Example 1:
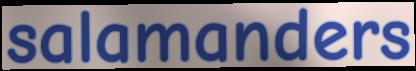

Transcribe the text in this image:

salamanders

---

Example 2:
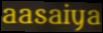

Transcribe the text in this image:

aasaiya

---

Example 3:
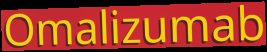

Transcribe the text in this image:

Omalizumab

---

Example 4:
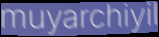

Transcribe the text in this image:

muyarchiyil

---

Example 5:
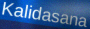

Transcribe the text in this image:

Kalidasana